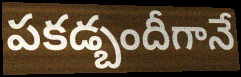
పకడ్బందీగానే